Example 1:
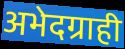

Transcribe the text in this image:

अभेदग्राही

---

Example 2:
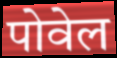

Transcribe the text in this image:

पोवेल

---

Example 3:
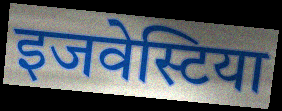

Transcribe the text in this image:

इजवेस्टिया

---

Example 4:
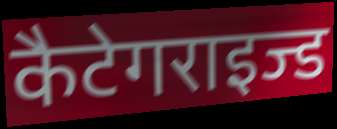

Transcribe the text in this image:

कैटेगराइज्ड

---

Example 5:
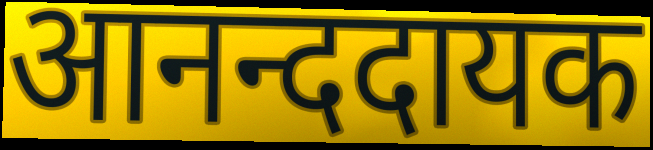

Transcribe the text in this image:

आनन्ददायक